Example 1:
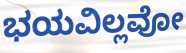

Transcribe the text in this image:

ಭಯವಿಲ್ಲವೋ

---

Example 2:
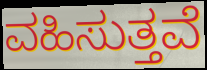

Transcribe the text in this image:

ವಹಿಸುತ್ತವೆ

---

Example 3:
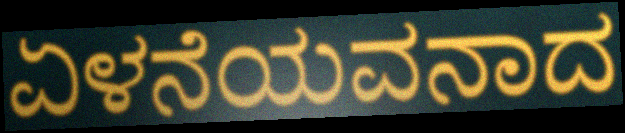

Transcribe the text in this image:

ಏಳನೆಯವನಾದ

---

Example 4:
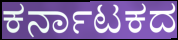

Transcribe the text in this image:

ಕರ್ನಾಟಕದ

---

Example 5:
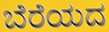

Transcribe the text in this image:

ಬೆರೆಯದ